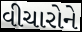
વીચારોને